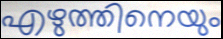
എഴുത്തിനെയും